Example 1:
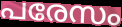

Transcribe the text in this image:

പരേസം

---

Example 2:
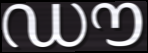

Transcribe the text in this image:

ഡൗ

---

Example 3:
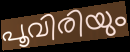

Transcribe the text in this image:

പൂവിരിയും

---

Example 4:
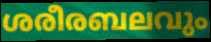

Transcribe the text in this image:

ശരീരബലവും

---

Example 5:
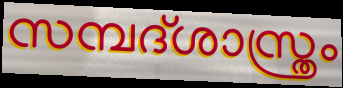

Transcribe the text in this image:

സമ്പദ്ശാസ്ത്രം